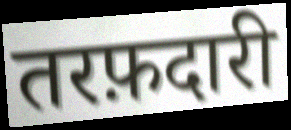
तरफ़दारी